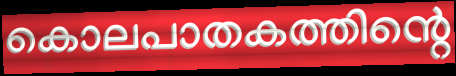
കൊലപാതകത്തിന്റെ